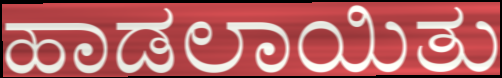
ಹಾಡಲಾಯಿತು